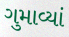
ગુમાવ્યાં